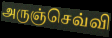
அருஞ்செவ்வி